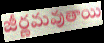
జీర్ణమవుతాయి